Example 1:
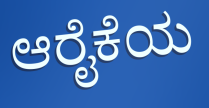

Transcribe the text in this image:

ಆರೈಕೆಯ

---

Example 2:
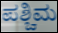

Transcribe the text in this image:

ಪಶ್ಚಿಮ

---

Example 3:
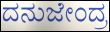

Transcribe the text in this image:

ದನುಜೇಂದ್ರ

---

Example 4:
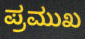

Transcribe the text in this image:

ಪ್ರಮುಖ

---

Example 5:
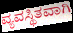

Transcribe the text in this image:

ವ್ಯವಸ್ಥಿತವಾಗಿ